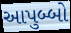
આપુબ્બો